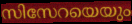
സിസേറയെയും